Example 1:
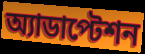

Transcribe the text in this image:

অ্যাডাপ্টেশন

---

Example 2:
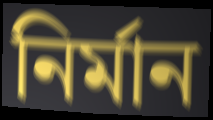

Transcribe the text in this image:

নির্মান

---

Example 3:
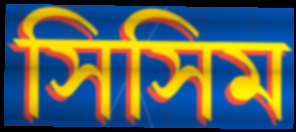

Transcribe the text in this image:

সিসিম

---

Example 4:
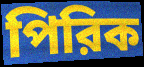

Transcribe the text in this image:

পিরিক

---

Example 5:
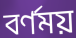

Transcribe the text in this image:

বর্ণময়